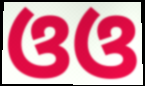
ଓଓ